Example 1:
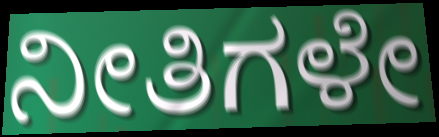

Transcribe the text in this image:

ನೀತಿಗಳೇ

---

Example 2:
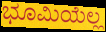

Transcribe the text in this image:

ಭೂಮಿಯೆಲ್ಲ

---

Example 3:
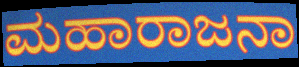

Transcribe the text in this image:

ಮಹಾರಾಜನಾ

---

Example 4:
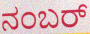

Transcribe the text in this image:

ನಂಬರ್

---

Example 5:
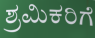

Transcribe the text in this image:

ಶ್ರಮಿಕರಿಗೆ